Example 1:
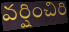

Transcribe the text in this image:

వర్షించిరి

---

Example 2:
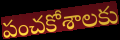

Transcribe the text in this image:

పంచకోశాలకు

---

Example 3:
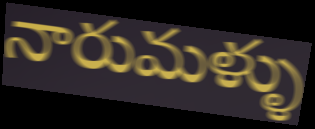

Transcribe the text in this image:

నారుమళ్ళు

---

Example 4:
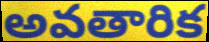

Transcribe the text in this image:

అవతారిక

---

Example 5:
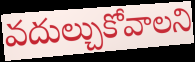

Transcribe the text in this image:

వదుల్చుకోవాలని